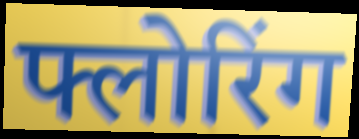
फ्लोरिंग